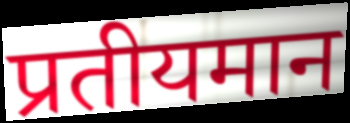
प्रतीयमान